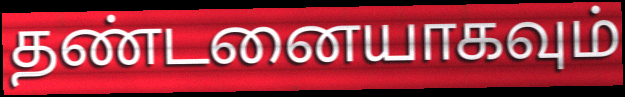
தண்டனையாகவும்